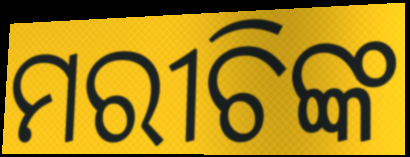
ମରୀଚିଙ୍କ